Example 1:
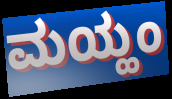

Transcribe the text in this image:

ಮಯ್ಹಂ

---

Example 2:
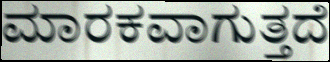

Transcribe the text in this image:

ಮಾರಕವಾಗುತ್ತದೆ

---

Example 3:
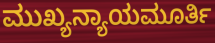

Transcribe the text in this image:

ಮುಖ್ಯನ್ಯಾಯಮೂರ್ತಿ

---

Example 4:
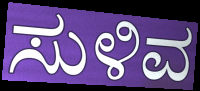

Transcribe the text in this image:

ಸುಳಿವ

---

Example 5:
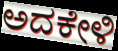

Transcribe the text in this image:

ಅದಕೇಳಿ